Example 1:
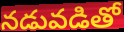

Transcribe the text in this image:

నడువడితో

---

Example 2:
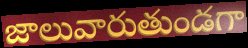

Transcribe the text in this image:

జాలువారుతుండగా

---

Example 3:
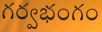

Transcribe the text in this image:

గర్వభంగం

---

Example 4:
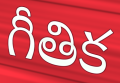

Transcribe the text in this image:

గీతిక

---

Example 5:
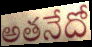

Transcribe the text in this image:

అతనేదో